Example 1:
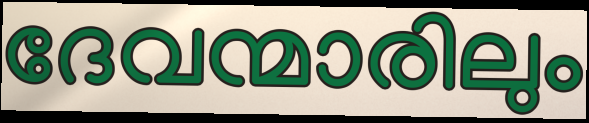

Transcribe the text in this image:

ദേവന്മാരിലും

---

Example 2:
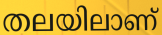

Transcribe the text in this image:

തലയിലാണ്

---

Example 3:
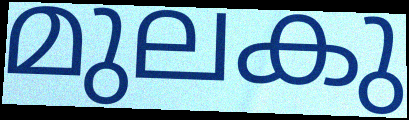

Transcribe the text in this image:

മുലകു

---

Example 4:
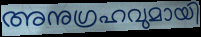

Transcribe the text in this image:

അനുഗ്രഹവുമായി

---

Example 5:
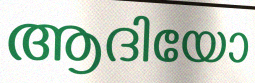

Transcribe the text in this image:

ആദിയോ